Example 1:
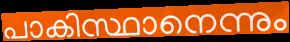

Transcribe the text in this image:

പാകിസ്ഥാനെന്നും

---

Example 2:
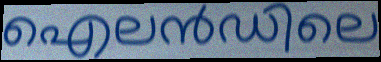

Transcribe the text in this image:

ഐലൻഡിലെ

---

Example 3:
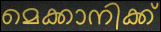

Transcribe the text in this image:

മെക്കാനിക്ക്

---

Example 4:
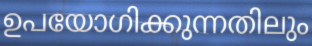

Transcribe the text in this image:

ഉപയോഗിക്കുന്നതിലും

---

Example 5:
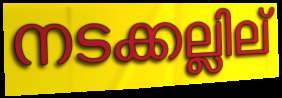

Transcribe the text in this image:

നടക്കല്ലില്